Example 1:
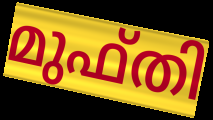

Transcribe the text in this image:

മുഫ്തി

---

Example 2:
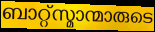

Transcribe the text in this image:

ബാറ്റ്സ്മാന്മാരുടെ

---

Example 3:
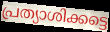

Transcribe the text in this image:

പ്രത്യാശിക്കട്ടെ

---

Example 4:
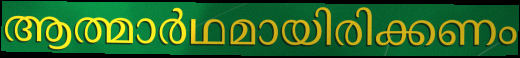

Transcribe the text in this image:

ആത്മാർഥമായിരിക്കണം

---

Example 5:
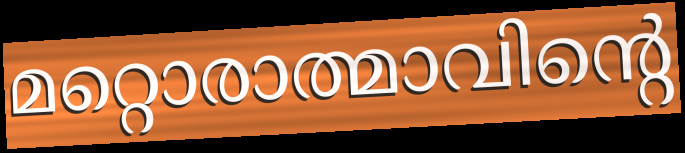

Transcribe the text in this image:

മറ്റൊരാത്മാവിന്റെ